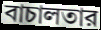
বাচালতার